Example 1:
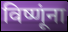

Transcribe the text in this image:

विष्णूंना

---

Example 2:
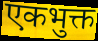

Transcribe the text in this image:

एकभुक्त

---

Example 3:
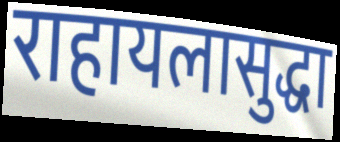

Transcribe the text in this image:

राहायलासुद्धा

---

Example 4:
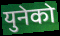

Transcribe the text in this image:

युनेको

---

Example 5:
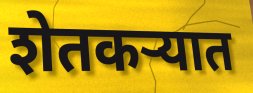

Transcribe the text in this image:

शेतकऱ्यात